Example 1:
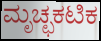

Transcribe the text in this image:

ಮೃಚ್ಛಕಟಿಕ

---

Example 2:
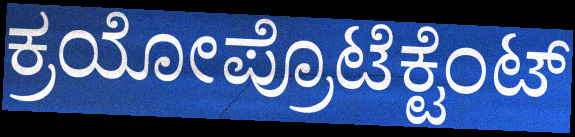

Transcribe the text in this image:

ಕ್ರಯೋಪ್ರೊಟೆಕ್ಟೆಂಟ್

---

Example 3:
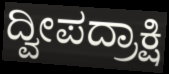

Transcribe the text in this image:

ದ್ವೀಪದ್ರಾಕ್ಷಿ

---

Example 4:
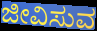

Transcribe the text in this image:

ಜೀವಿಸುವ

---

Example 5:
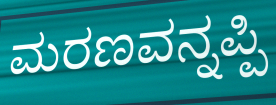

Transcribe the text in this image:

ಮರಣವನ್ನಪ್ಪಿ